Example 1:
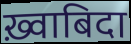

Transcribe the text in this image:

ख़्वाबिदा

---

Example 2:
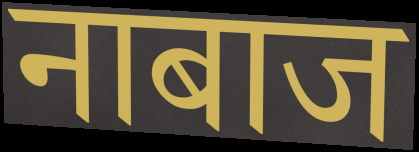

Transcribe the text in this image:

नाबाज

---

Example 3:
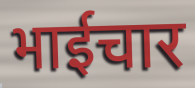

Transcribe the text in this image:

भाईचार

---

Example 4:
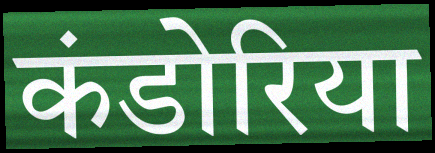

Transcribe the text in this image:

कंडोरिया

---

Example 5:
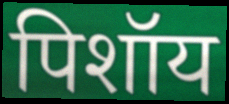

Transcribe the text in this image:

पिशॉय